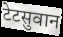
टेटसुवान